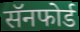
सॅनफोर्ड